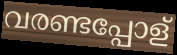
വരണ്ടപ്പോള്